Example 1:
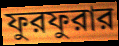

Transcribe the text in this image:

ফুরফুরার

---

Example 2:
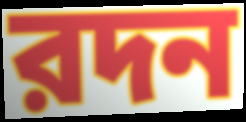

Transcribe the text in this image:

রদন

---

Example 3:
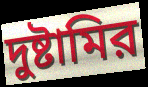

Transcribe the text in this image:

দুষ্টামির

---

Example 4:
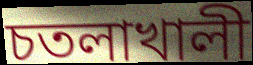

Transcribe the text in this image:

চতলাখালী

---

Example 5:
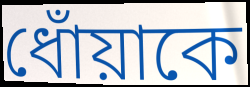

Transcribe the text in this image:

ধোঁয়াকে